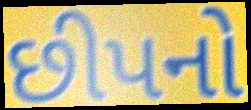
છીપનો